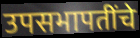
उपसभापतींचे